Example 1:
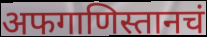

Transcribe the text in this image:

अफगाणिस्तानचं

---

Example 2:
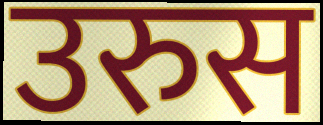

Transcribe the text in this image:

उरुस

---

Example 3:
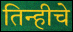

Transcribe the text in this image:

तिन्हीचे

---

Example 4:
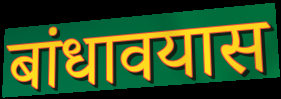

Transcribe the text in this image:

बांधावयास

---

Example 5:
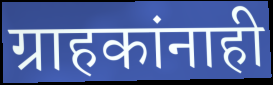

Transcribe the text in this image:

ग्राहकांनाही